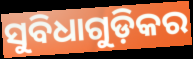
ସୁବିଧାଗୁଡ଼ିକର